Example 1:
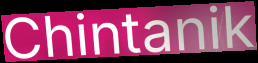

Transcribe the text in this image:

Chintanik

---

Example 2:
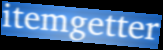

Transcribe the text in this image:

itemgetter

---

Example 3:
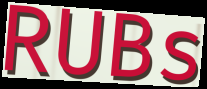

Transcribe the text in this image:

RUBs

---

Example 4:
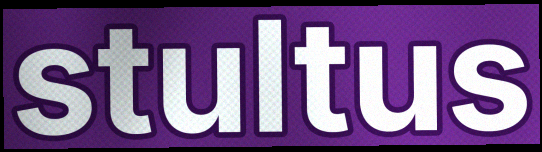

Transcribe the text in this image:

stultus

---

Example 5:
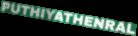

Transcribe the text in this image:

PUTHIYATHENRAL